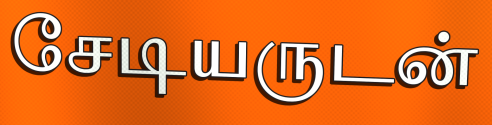
சேடியருடன்